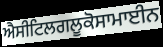
ਐਸੀਟਿਲਗਲੂਕੋਸਾਮਾਈਨ